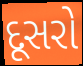
દૂસરો